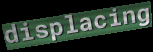
displacing